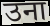
उना